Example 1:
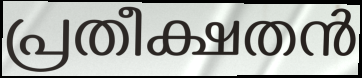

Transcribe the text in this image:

പ്രതീക്ഷതൻ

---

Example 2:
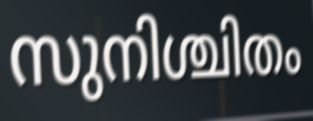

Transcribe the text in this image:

സുനിശ്ചിതം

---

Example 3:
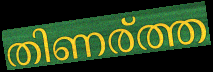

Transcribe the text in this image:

തിണര്ത്ത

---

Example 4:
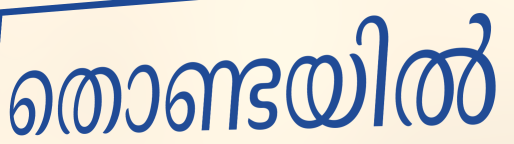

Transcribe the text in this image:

തൊണ്ടയിൽ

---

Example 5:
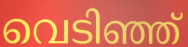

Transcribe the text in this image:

വെടിഞ്ഞ്